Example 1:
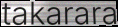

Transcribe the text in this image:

takarara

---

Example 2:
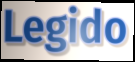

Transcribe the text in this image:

Legido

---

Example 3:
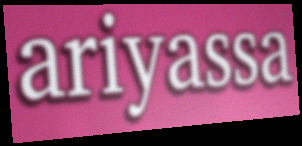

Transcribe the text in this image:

ariyassa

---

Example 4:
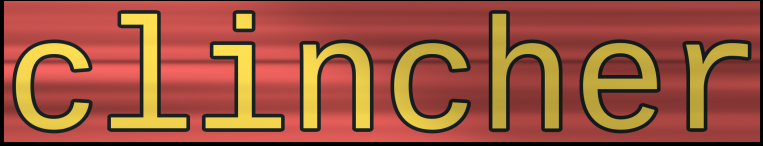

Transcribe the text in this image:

clincher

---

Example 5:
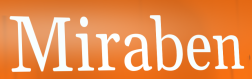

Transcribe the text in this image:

Miraben